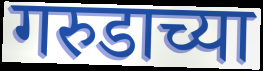
गरुडाच्या